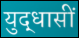
युद्धासीं